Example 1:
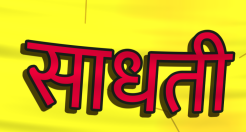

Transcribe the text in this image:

साधती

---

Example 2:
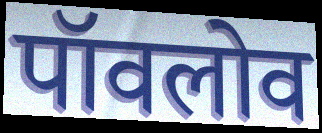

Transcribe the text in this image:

पॉवलोव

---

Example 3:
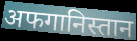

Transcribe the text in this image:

अफगानिस्तान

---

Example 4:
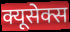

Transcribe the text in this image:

क्यूसेक्स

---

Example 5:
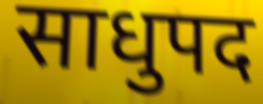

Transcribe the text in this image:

साधुपद